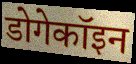
डोगेकॉइन